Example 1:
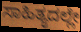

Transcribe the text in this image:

ಸಾಹಿತ್ಯದಲ್ಲೇ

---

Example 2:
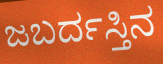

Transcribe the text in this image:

ಜಬರ್ದಸ್ತಿನ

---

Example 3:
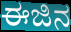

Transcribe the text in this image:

ಈಜಿನ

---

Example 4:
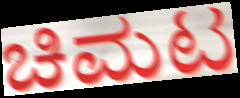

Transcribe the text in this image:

ಚಿಮಟ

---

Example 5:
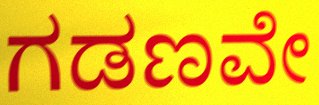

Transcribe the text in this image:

ಗಡಣವೇ